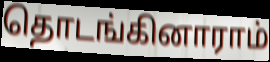
தொடங்கினாராம்